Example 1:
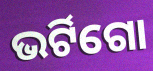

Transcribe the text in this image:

ଭର୍ଟିଗୋ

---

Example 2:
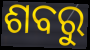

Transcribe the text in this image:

ଶବରୁ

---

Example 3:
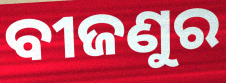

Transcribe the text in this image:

ବୀଜଣୁର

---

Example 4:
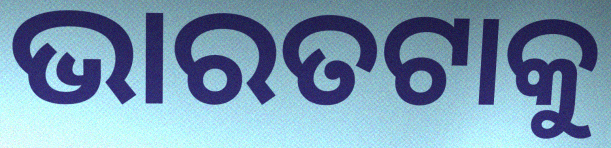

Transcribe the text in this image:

ଭାରତଟାକୁ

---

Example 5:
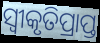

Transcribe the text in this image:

ସ୍ୱୀକୃତିପ୍ରାପ୍ତ